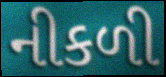
નીકળી